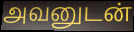
அவனுடன்